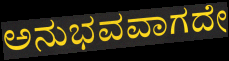
ಅನುಭವವಾಗದೇ